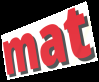
mat